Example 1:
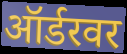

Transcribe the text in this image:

ऑर्डरवर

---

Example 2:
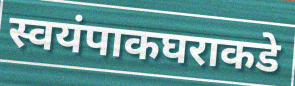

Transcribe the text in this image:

स्वयंपाकघराकडे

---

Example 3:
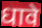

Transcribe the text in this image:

धावे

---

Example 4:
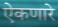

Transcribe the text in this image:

ऐकणारे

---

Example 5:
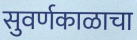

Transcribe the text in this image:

सुवर्णकाळाचा